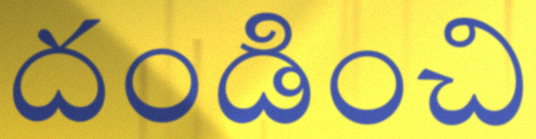
దండించి